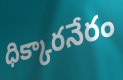
ధిక్కారనేరం